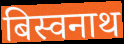
बिस्वनाथ